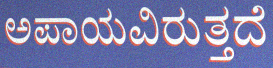
ಅಪಾಯವಿರುತ್ತದೆ